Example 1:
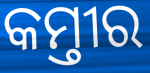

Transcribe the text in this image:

କମ୍ତୀର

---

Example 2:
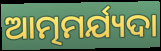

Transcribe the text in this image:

ଆତ୍ମମର୍ଯ୍ୟଦା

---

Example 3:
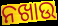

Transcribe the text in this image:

ନଖାଉ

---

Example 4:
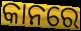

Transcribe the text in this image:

କାନରେ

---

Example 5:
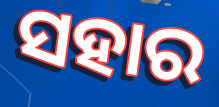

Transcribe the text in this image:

ସହାର